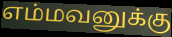
எம்மவனுக்கு